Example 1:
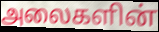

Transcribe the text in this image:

அலைகளின்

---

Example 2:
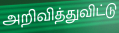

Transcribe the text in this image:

அறிவித்துவிட்டு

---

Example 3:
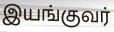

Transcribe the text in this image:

இயங்குவர்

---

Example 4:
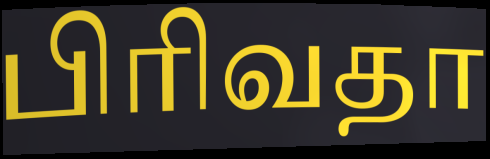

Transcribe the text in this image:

பிரிவதா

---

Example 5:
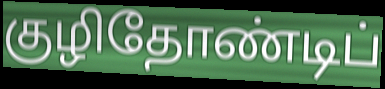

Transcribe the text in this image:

குழிதோண்டிப்